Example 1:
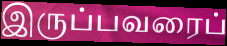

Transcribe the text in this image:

இருப்பவரைப்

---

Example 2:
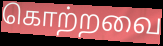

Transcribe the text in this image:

கொற்றவை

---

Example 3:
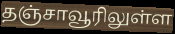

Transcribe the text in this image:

தஞ்சாவூரிலுள்ள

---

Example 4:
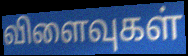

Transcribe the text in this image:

விளைவுகள்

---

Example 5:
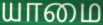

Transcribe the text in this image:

யாமை